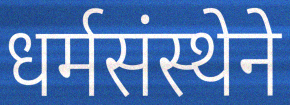
धर्मसंस्थेने